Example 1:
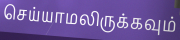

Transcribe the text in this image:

செய்யாமலிருக்கவும்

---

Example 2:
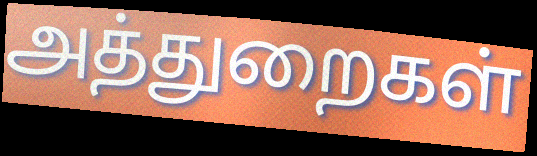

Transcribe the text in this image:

அத்துறைகள்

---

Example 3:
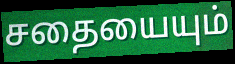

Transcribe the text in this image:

சதையையும்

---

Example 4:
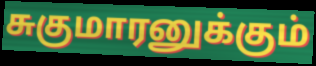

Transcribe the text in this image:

சுகுமாரனுக்கும்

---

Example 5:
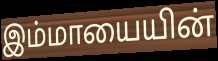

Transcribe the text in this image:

இம்மாயையின்